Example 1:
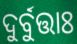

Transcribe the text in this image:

ଦୁର୍ବୁତ୍ତାଃ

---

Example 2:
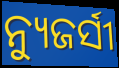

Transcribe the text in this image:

ନ୍ୟୁଜର୍ସୀ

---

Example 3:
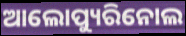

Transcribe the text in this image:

ଆଲୋପ୍ୟୁରିନୋଲ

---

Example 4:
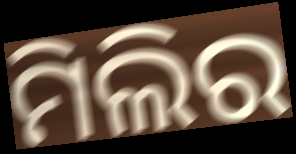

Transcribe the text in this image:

ମିଲିର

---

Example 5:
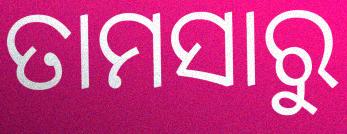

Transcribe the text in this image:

ତାମସାରୁ